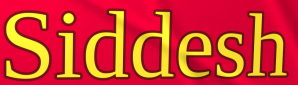
Siddesh